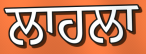
ਲਾਹਲਾ